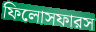
ফিলোসফারস